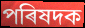
পৰিষদক